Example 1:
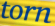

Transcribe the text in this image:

torn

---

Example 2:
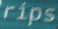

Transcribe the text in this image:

rips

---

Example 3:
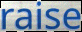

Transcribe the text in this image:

raise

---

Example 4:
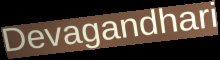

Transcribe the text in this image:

Devagandhari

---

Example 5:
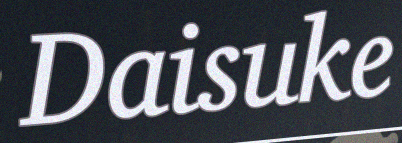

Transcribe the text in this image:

Daisuke